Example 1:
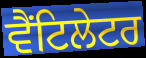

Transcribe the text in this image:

ਵੈਂਟਿਲੇਟਰ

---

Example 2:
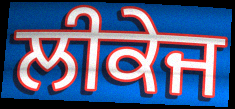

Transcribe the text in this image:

ਲੀਕੇਜ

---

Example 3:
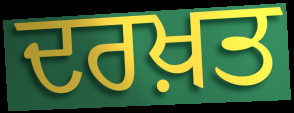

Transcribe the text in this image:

ਦਰਖ਼ਤ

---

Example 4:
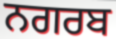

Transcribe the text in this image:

ਨਗਰਬ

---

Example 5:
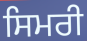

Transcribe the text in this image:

ਸਿਮਰੀ